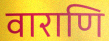
वाराणि